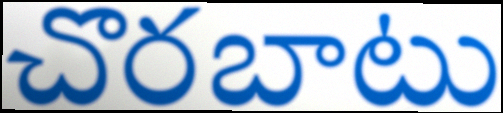
చొరబాటు